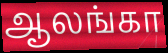
ஆலங்கா